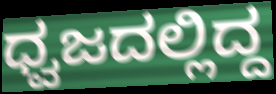
ಧ್ವಜದಲ್ಲಿದ್ದ